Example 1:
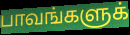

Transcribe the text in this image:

பாவங்களுக்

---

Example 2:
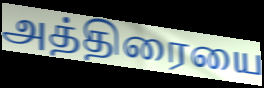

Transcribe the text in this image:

அத்திரையை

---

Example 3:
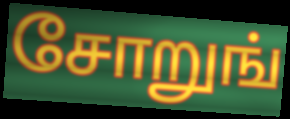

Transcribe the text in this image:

சோறுங்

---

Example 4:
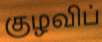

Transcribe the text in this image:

குழவிப்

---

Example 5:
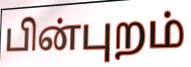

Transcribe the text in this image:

பின்புறம்